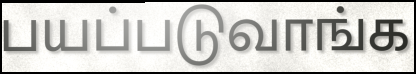
பயப்படுவாங்க